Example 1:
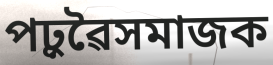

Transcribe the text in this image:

পঢ়ুৱৈসমাজক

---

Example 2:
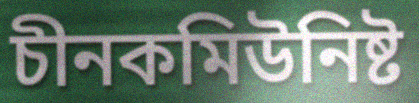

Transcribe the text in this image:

চীনকমিউনিষ্ট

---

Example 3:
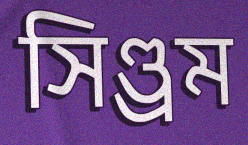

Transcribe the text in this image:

সিণ্ড্ৰম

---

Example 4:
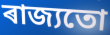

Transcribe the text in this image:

ৰাজ্যতো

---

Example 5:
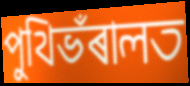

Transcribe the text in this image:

পুথিভঁৰালত